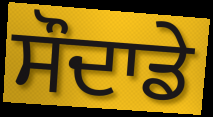
ਸੌਦਾਡੇ